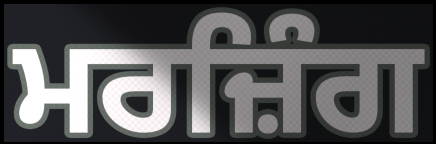
ਮਰਜ਼ਿੰਗ